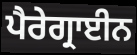
ਪੈਰੇਗ੍ਰਾਈਨ